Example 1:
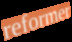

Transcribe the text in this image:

reformer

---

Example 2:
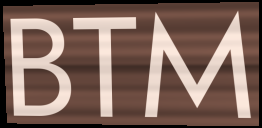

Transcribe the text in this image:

BTM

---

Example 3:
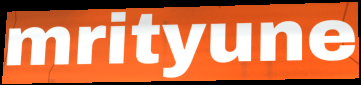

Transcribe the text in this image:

mrityune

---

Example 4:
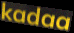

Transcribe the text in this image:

kadaa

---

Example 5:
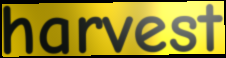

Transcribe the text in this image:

harvest